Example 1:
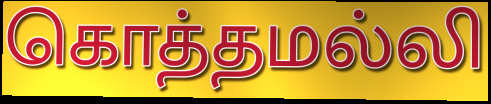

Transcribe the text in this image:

கொத்தமல்லி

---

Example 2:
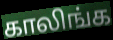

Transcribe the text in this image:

காலிங்க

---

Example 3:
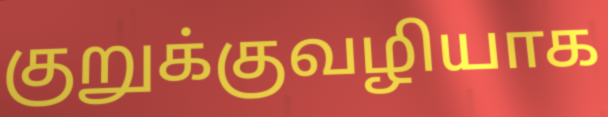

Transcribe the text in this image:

குறுக்குவழியாக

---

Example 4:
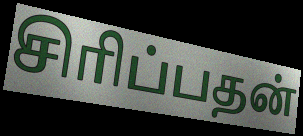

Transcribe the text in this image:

சிரிப்பதன்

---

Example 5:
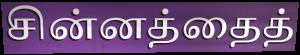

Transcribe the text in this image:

சின்னத்தைத்